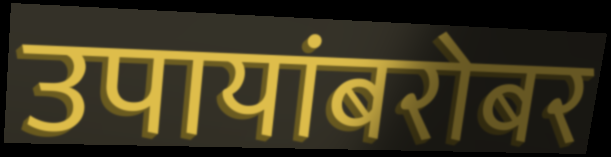
उपायांबरोबर